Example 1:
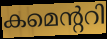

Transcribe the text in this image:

കമെന്ററി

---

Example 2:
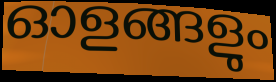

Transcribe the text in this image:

ഓളങ്ങളും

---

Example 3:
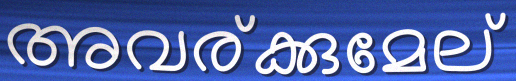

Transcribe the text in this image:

അവര്ക്കുമേല്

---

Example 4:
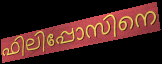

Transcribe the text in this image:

ഫിലിപ്പോസിനെ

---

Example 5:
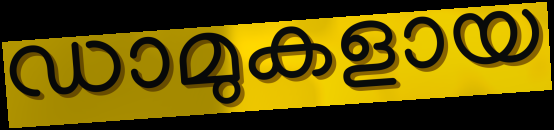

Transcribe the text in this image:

ഡാമുകളായ